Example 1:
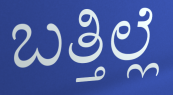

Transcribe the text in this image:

ಬತ್ತಿಲ್ಲೆ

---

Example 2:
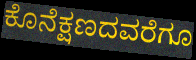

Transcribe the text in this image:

ಕೊನೆಕ್ಷಣದವರೆಗೂ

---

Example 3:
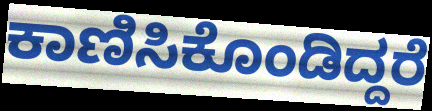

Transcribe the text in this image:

ಕಾಣಿಸಿಕೊಂಡಿದ್ದರೆ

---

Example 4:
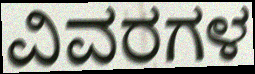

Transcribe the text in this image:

ವಿವರಗಳ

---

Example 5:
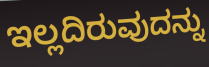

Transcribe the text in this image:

ಇಲ್ಲದಿರುವುದನ್ನು